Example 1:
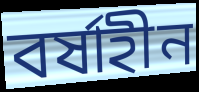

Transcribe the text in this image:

বর্ষাহীন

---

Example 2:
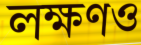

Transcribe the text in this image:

লক্ষণও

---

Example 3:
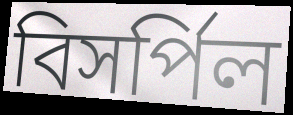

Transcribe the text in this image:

বিসর্পিল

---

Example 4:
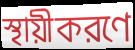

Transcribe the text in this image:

স্থায়ীকরণে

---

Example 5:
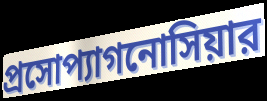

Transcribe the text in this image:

প্রসোপ্যাগনোসিয়ার